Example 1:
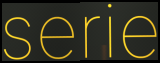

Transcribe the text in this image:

serie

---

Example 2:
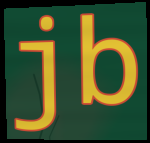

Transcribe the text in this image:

jb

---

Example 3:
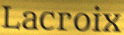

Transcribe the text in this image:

Lacroix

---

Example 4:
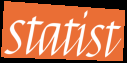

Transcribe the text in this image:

statist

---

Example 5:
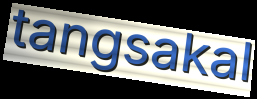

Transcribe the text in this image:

tangsakal